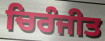
ਚਿਰੰਜੀਤ